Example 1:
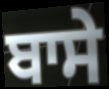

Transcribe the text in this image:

ਬਾਸੇ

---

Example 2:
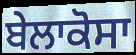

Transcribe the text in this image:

ਬੇਲਾਕੋਸਾ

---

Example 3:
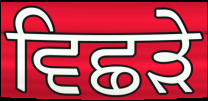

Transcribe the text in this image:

ਵਿਛੜੇ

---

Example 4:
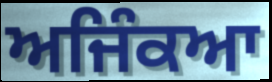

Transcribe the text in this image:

ਅਜਿੰਕਆ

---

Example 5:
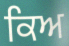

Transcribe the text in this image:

ਕਿਅ